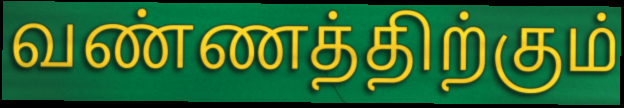
வண்ணத்திற்கும்